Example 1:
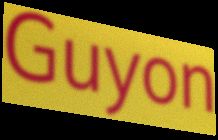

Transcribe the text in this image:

Guyon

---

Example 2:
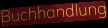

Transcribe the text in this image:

Buchhandlung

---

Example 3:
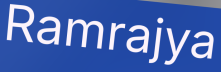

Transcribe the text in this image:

Ramrajya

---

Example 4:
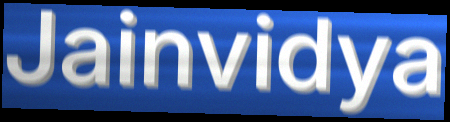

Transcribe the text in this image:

Jainvidya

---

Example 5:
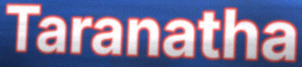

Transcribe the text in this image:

Taranatha